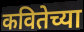
कवितेच्या